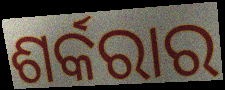
ଶର୍କରାର